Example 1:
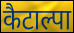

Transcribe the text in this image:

कैटाल्पा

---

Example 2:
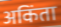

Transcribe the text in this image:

अकिंता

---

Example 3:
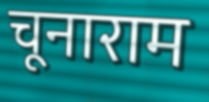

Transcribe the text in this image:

चूनाराम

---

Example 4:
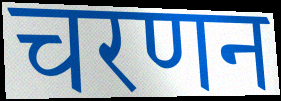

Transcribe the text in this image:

चरणन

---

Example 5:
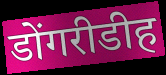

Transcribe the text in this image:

डोंगरीडीह